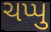
ચપ્પુ